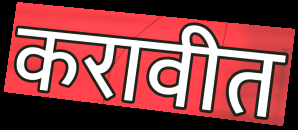
करावीत